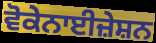
ਵੋਕੇਨਾਈਜ਼ੇਸ਼ਨ